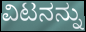
ವಿಟನನ್ನು